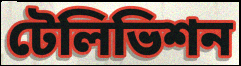
টেলিভিশন